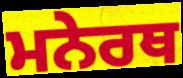
ਮਨੇਰਥ